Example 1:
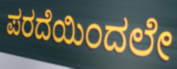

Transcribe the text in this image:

ಪರದೆಯಿಂದಲೇ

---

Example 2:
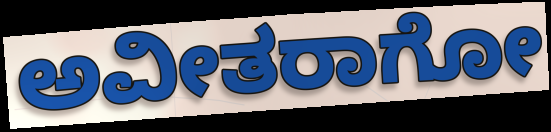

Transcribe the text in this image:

ಅವೀತರಾಗೋ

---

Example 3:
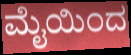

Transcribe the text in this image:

ಮೈಯಿಂದ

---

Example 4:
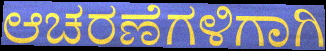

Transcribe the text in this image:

ಆಚರಣೆಗಳಿಗಾಗಿ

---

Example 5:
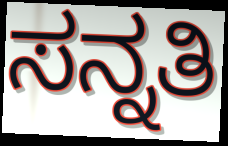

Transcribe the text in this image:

ಸನ್ನತಿ